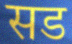
सड